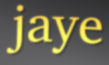
jaye